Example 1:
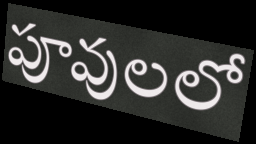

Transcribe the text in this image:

పూవులలో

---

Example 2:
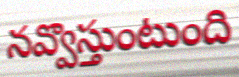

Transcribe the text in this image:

నవ్వొస్తుంటుంది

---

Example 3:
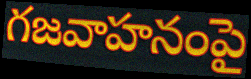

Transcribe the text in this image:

గజవాహనంపై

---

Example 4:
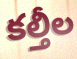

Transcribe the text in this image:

కల్తీల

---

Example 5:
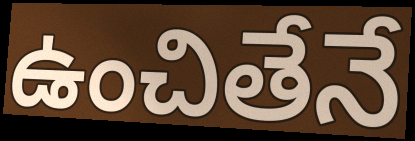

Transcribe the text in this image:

ఉంచితేనే